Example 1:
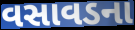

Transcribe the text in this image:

વસાવડના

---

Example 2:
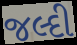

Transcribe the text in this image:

જલ્દી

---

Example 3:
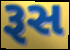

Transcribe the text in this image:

રૂસ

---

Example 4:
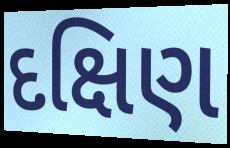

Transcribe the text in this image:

દક્ષિણ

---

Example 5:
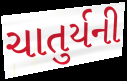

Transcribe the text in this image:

ચાતુર્યની